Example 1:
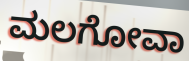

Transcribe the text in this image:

ಮಲಗೋವಾ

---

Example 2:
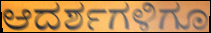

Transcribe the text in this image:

ಆದರ್ಶಗಳಿಗೂ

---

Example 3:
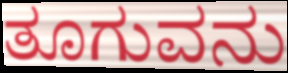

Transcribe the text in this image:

ತೂಗುವನು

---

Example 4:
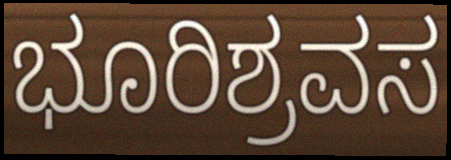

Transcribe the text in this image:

ಭೂರಿಶ್ರವಸ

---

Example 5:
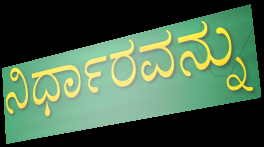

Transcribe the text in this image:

ನಿರ್ಧಾರವನ್ನು